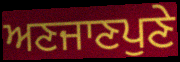
ਅਣਜਾਣਪੁਣੇ